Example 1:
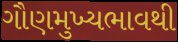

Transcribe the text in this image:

ગૌણમુખ્યભાવથી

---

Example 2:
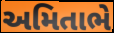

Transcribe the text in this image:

અમિતાભે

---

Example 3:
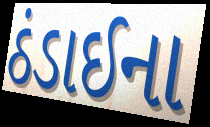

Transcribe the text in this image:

ઠંડાઈના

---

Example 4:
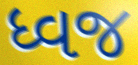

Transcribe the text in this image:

ધ્વજ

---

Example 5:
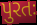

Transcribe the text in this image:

પુરતઃ